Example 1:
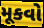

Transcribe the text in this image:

મૂકવો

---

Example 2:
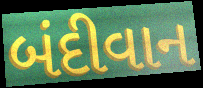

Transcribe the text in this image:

બંદીવાન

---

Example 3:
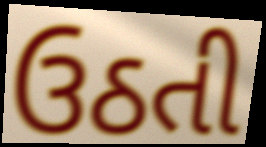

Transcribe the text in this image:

ઉઠતી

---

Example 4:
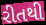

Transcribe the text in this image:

રીતથી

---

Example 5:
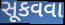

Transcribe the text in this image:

સૂકવવા